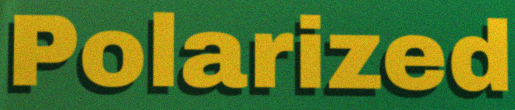
Polarized